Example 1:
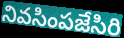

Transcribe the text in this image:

నివసింపజేసిరి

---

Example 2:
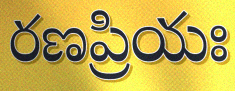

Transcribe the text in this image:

రణప్రియః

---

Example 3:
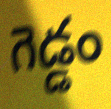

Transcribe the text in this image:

గెడ్డం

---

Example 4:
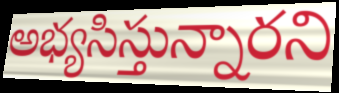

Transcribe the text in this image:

అభ్యసిస్తున్నారని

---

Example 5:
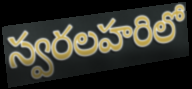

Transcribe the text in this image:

స్వరలహరిలో